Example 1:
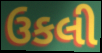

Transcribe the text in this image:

ઉકલી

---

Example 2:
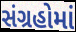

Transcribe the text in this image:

સંગ્રહોમાં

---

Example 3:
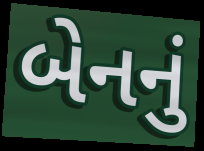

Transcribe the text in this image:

બેનનું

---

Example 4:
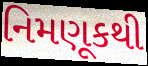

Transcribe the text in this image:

નિમણૂકથી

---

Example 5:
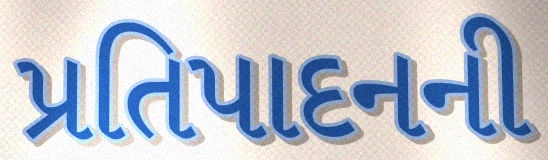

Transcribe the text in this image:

પ્રતિપાદનની